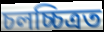
চলচ্চিত্ৰত